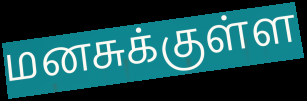
மனசுக்குள்ள